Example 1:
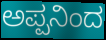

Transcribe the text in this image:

ಅಪ್ಪನಿಂದ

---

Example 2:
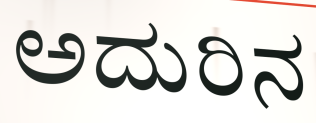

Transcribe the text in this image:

ಅದುರಿನ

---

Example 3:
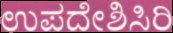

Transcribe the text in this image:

ಉಪದೇಶಿಸಿರಿ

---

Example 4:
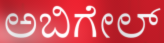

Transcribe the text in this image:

ಅಬಿಗೇಲ್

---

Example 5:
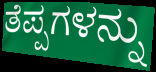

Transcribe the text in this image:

ತೆಪ್ಪಗಳನ್ನು